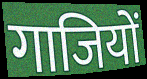
गाजियों